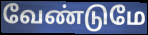
வேண்டுமே